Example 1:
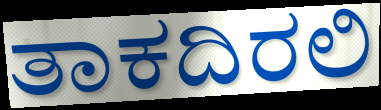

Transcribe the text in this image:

ತಾಕದಿರಲಿ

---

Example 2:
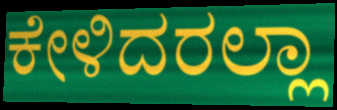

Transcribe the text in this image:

ಕೇಳಿದರಲ್ಲಾ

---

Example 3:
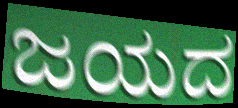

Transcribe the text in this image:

ಜಯದ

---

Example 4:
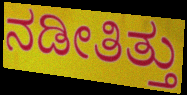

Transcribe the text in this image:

ನಡೀತಿತ್ತು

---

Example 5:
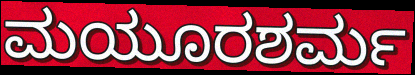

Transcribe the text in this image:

ಮಯೂರಶರ್ಮ